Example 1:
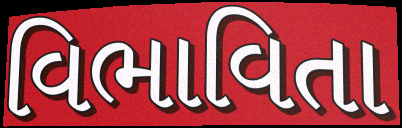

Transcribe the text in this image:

વિભાવિતા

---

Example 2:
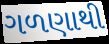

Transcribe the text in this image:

ગળણાથી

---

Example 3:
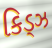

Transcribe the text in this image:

કિડ્ઝ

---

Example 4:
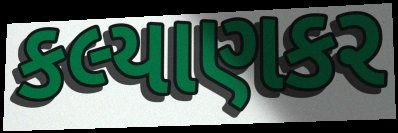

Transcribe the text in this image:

કલ્યાણકર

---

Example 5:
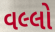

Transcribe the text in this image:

વલ્લો